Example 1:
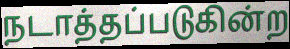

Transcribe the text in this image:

நடாத்தப்படுகின்ற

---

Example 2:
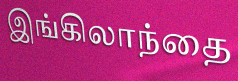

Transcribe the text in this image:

இங்கிலாந்தை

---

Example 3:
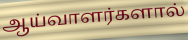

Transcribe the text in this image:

ஆய்வாளர்களால்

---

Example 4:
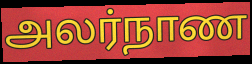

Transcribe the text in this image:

அலர்நாண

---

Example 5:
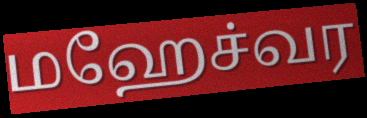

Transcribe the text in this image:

மஹேச்வர